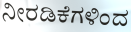
ನೀರಡಿಕೆಗಳಿಂದ